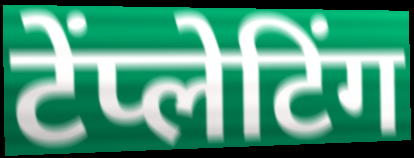
टेंप्लेटिंग